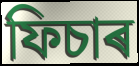
ফিচাৰ